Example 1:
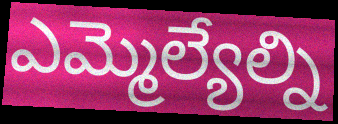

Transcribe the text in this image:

ఎమ్మెల్యేల్ని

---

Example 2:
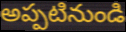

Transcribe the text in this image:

అప్పటినుండి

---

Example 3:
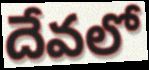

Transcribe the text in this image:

దేవలో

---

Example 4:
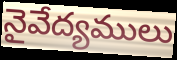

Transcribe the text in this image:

నైవేద్యములు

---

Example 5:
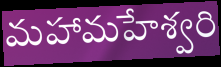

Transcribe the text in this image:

మహామహేశ్వరి